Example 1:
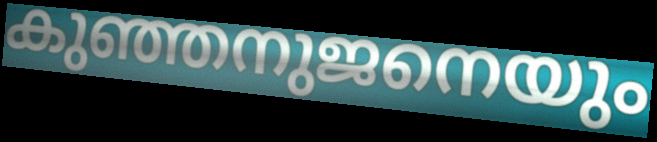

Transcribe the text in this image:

കുഞ്ഞനുജനെയും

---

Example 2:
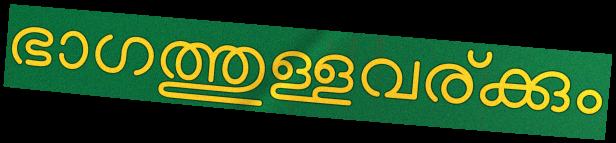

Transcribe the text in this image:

ഭാഗത്തുള്ളവര്ക്കും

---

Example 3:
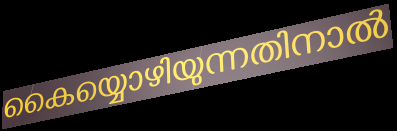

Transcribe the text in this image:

കൈയ്യൊഴിയുന്നതിനാൽ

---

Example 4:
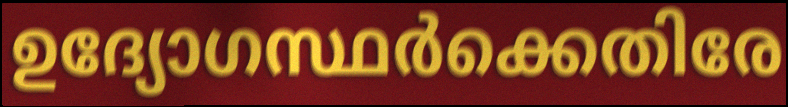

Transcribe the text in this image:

ഉദ്യോഗസ്ഥർക്കെതിരേ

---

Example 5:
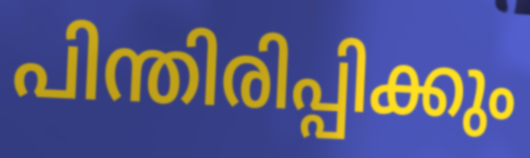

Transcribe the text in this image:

പിന്തിരിപ്പിക്കും